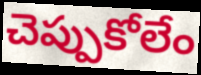
చెప్పుకోలేం